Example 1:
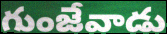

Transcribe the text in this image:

గుంజేవాడు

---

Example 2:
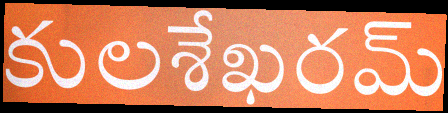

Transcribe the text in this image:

కులశేఖరమ్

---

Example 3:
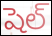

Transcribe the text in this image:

షెల్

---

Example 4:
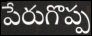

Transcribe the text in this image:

పేరుగొప్ప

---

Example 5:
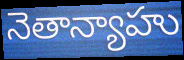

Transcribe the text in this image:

నెతాన్యాహు